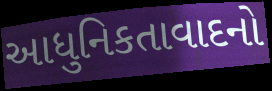
આધુનિકતાવાદનો